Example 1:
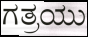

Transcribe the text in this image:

ಗತ್ರಯು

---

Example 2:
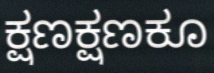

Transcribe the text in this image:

ಕ್ಷಣಕ್ಷಣಕೂ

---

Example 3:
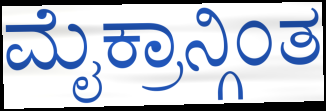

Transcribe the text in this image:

ಮೈಕ್ರಾನ್ಗಿಂತ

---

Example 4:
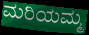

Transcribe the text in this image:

ಮರಿಯಮ್ಮ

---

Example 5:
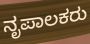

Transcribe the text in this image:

ನೃಪಾಲಕರು